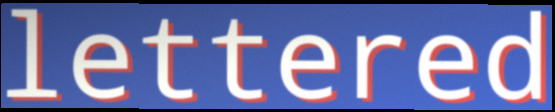
lettered